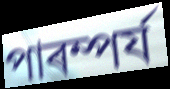
পাৰম্পৰ্য